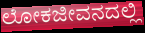
ಲೋಕಜೀವನದಲ್ಲಿ